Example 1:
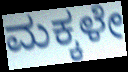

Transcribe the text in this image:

ಮಕ್ಕಳೇ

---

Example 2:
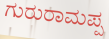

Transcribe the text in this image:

ಗುರುರಾಮಪ್ಪ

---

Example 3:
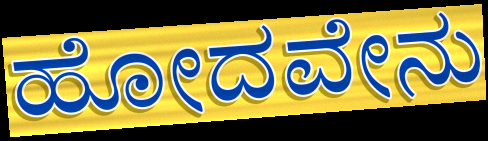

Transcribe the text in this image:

ಹೋದವೇನು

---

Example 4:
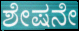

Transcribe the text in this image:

ಶೇಷನೇ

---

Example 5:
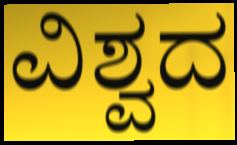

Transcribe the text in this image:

ವಿಶ್ವದ